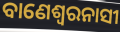
ବାଣେଶ୍ୱରନାସୀ